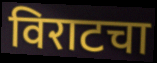
विराटचा